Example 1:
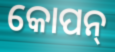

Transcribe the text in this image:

କୋପନ୍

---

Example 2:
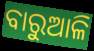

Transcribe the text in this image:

ବାରୁଆଳି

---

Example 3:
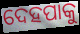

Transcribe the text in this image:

ଦେହପାକୁ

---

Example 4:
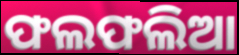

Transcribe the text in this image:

ଫଲଫଲିଆ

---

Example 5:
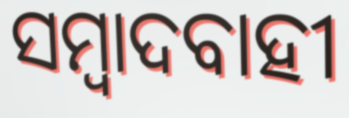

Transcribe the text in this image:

ସମ୍ବାଦବାହୀ